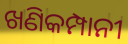
ଖଣିକମ୍ପାନୀ